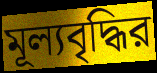
মূল্যবৃদ্ধির